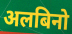
अलबिनो